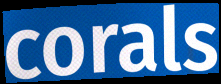
corals